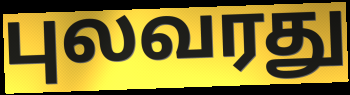
புலவரது